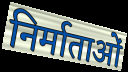
निर्माताओं